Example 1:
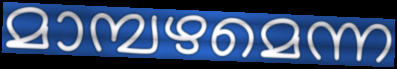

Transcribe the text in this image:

മാമ്പഴമെന്ന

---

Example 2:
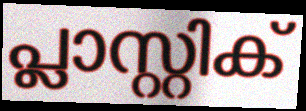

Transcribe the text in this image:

പ്ലാസ്റ്റിക്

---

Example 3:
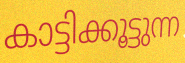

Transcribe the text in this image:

കാട്ടിക്കൂട്ടുന്ന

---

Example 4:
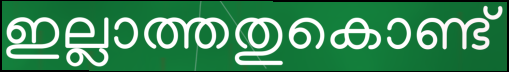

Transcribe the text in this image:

ഇല്ലാത്തതുകൊണ്ട്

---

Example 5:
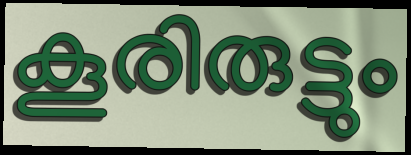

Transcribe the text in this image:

കൂരിരുട്ടും